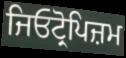
ਜਿਓਟ੍ਰੋਪਿਜ਼ਮ